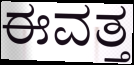
ಈವತ್ತ